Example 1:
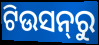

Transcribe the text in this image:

ଟିଉସନ୍‌ରୁ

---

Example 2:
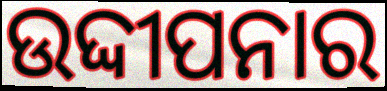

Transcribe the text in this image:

ଉଦ୍ଦୀପନାର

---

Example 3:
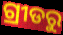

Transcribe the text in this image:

ଗ୍ରୀଡରୁ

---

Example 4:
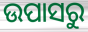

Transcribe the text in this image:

ଉପାସରୁ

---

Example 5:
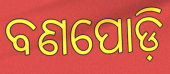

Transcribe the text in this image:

ବଣପୋଡ଼ି